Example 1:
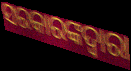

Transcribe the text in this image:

ସରକାରଙ୍କଦ୍ବାରା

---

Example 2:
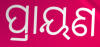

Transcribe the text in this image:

ପ୍ରାୟଣ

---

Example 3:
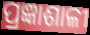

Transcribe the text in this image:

ପ୍ରଜ୍ଞାଶାଳୀ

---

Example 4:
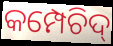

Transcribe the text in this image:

କମ୍ପେଚିଦ୍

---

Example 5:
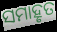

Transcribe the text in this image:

ସମାହୃତ